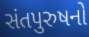
સંતપુરુષનો